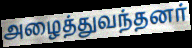
அழைத்துவந்தனர்